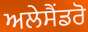
ਅਲੇਸੈਂਡਰੋ